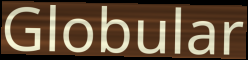
Globular